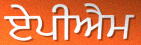
ਏਪੀਐਮ